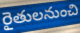
రైతులనుంచి